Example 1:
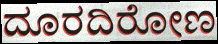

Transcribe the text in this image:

ದೂರದಿರೋಣ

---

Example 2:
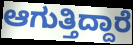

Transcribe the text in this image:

ಆಗುತ್ತಿದ್ದಾರೆ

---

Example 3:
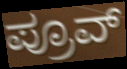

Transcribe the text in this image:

ಪ್ರೂವ್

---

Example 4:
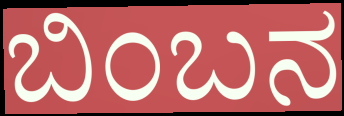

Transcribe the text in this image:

ಬಿಂಬನ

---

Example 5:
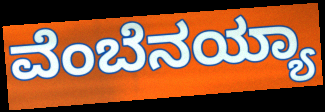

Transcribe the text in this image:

ವೆಂಬೆನಯ್ಯಾ